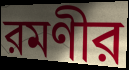
রমণীর